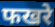
फखरे